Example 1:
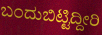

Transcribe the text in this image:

ಬಂದುಬಿಟ್ಟಿದ್ದೀರಿ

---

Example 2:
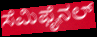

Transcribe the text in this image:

ಸೆಮಿಫೈನಲ್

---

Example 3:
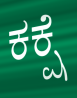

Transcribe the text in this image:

ಕಕ್ಷೆ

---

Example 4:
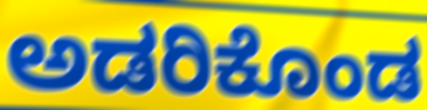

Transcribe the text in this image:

ಅಡರಿಕೊಂಡ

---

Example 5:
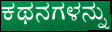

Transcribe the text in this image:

ಕಥನಗಳನ್ನು